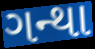
ગન્થા